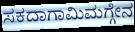
ಸಕದಾಗಾಮಿಮಗ್ಗೇನ